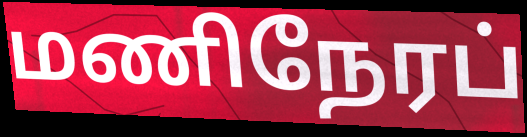
மணிநேரப்